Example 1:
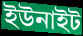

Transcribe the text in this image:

ইউনাইট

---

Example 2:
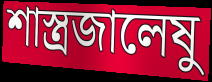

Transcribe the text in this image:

শাস্ত্রজালেষু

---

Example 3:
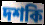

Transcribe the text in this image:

দশকি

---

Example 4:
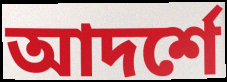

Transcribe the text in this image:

আদর্শে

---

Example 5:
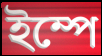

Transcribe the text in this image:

ইম্পে